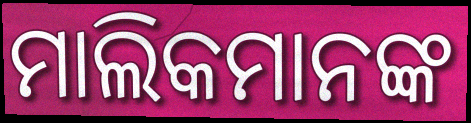
ମାଲିକମାନଙ୍କ